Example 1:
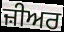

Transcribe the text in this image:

ਜ਼ੀਅਰ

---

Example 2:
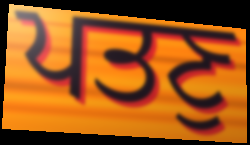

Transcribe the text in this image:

ਪਤਣੁ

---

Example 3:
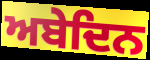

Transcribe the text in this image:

ਅਬੇਦਿਨ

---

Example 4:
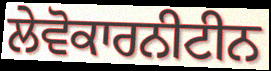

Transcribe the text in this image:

ਲੇਵੋਕਾਰਨੀਟੀਨ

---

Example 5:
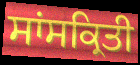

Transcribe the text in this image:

ਸਾਂਸਕ੍ਰਿਤੀ